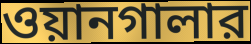
ওয়ানগালার